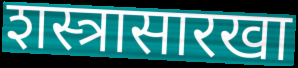
शस्त्रासारखा